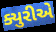
ક્યુરીએ